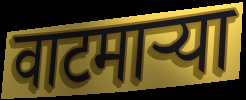
वाटमाऱ्या